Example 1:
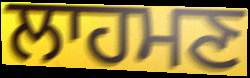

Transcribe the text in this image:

ਲਾਹਮਣ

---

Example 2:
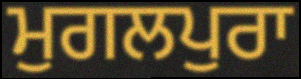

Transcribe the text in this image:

ਮੁਗਲਪੁਰਾ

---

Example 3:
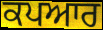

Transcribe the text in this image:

ਕਪਆਰ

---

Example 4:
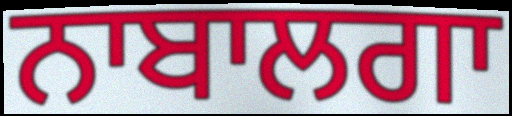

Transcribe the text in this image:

ਨਾਬਾਲਗਾ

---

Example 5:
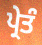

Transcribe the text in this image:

ਪ੍ਰੇਤੰ